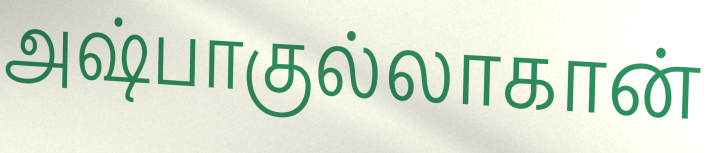
அஷ்பாகுல்லாகான்